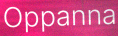
Oppanna